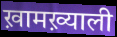
ख़ामख़्याली